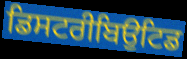
ਡਿਸਟਰੀਬਿਉਟਿਡ